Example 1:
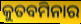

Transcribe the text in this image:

କୁତବମିନାର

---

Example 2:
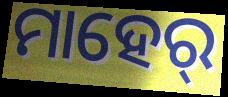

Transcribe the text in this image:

ମାହେର୍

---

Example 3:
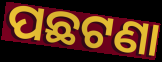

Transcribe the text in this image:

ପଛଟଣା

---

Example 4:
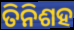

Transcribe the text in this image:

ତିନିଶହ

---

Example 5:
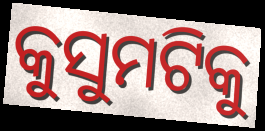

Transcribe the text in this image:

କୁସୁମଟିକୁ